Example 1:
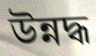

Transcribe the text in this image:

উন্নদ্ধ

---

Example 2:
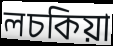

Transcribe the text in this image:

লচকিয়া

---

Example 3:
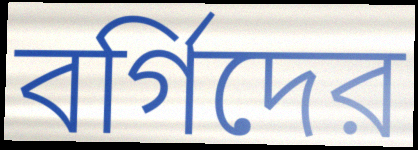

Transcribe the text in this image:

বর্গিদের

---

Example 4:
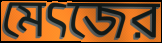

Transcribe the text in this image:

মেৎজের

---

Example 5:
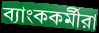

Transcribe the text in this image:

ব্যাংককর্মীরা